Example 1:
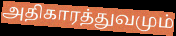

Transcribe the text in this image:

அதிகாரத்துவமும்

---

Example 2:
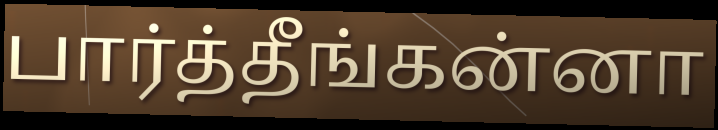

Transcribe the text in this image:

பார்த்தீங்கன்னா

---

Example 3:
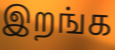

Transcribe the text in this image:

இறங்க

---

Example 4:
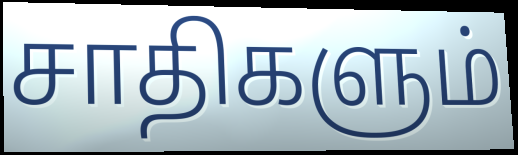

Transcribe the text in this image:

சாதிகளும்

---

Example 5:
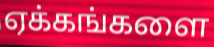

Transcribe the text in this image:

ஏக்கங்களை